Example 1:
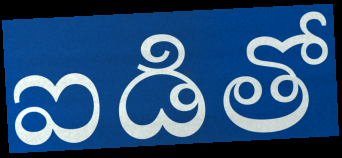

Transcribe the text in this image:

ఐడితో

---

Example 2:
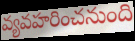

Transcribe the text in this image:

వ్యవహరించనుంది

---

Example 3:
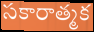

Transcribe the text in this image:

సకారాత్మక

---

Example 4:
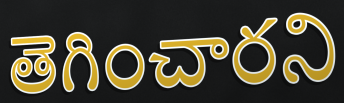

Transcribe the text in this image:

తెగించారని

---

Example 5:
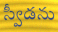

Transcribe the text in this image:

స్వీడను